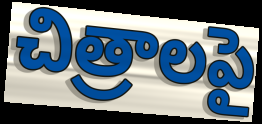
చిత్రాలపై